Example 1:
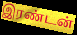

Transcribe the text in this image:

இரண்டன்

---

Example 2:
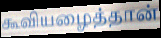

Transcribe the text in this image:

கூவியழைத்தான்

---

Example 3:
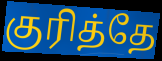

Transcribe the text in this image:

குரித்தே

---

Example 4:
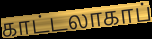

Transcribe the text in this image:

காட்டலாகாப்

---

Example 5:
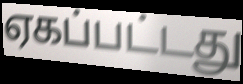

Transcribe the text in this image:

ஏகப்பட்டது